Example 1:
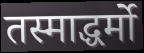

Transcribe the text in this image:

तस्माद्धर्मो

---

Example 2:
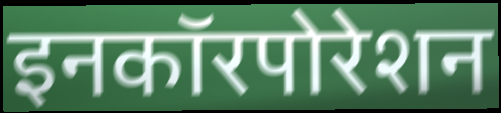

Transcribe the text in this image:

इनकॉरपोरेशन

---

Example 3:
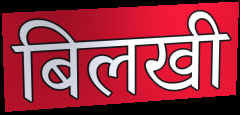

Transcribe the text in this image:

बिलखी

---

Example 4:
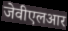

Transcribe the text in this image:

जेवीएलआर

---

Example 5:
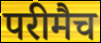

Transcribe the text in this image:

परीमैच